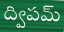
ద్విపమ్